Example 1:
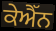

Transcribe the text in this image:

ਕੇਐੱਨ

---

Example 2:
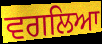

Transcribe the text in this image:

ਵਗਲਿਆ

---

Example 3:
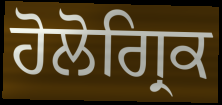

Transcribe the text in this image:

ਹੋਲੋਗ੍ਰਿਕ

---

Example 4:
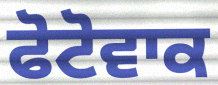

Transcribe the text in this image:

ਫੋਟੋਵਾਕ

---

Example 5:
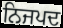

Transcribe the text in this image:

ਨਿਜਪਦ